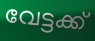
വേട്ടക്ക്